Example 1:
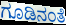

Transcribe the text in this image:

ಗೂಡಿನಂತೆ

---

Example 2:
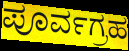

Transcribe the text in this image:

ಪೂರ್ವಗ್ರಹ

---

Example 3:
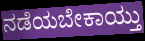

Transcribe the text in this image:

ನಡೆಯಬೇಕಾಯ್ತು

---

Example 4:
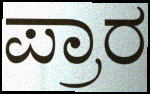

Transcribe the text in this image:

ಪ್ರಾರ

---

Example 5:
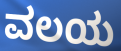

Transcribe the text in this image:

ವಲಯ